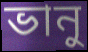
ভানু